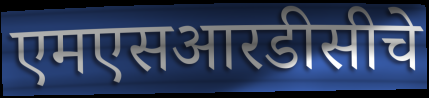
एमएसआरडीसीचे